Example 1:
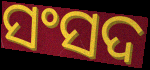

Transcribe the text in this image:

ସଂସଦ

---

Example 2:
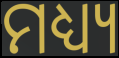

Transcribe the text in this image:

ମଧ୍ୟ୍ୟ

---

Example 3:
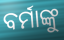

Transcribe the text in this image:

ବର୍ମାଙ୍କୁ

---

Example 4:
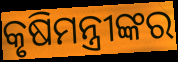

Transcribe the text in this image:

କୃଷିମନ୍ତ୍ରୀଙ୍କର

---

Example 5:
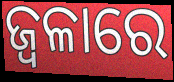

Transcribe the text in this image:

ଜ୍ୱଳାରେ